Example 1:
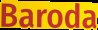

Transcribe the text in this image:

Baroda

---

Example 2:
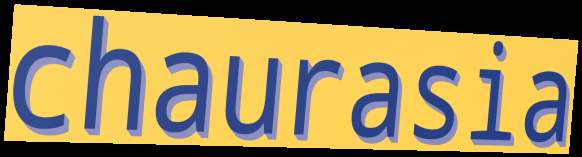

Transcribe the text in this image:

chaurasia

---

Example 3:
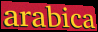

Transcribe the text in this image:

arabica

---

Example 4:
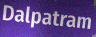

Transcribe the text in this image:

Dalpatram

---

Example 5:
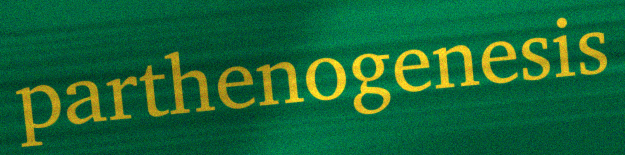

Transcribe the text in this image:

parthenogenesis